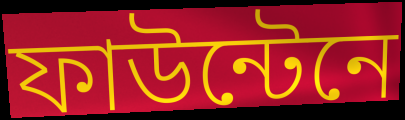
ফাউন্টেনে